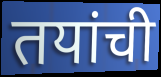
तयांची